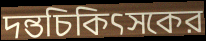
দন্তচিকিৎসকের